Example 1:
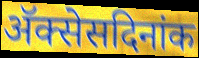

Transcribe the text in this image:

ॲक्सेसदिनांक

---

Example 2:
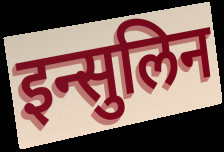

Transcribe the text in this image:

इन्सुलिन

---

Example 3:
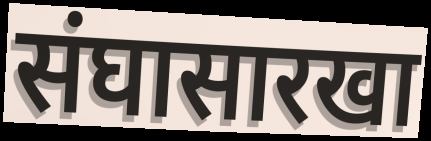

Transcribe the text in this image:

संघासारखा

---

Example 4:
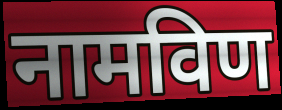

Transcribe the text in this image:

नामविण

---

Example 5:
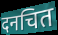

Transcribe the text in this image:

दनचित